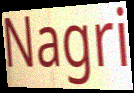
Nagri